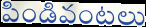
పిండివంటలు